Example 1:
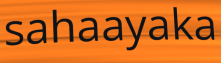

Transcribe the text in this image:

sahaayaka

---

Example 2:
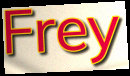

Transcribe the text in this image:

Frey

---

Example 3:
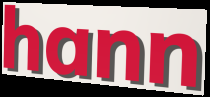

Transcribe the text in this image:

hann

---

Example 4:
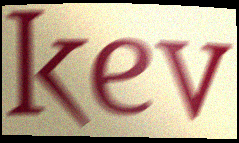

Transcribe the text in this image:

kev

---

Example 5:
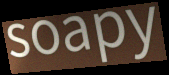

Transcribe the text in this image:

soapy